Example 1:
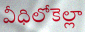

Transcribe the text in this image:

వీధిలోకెల్లా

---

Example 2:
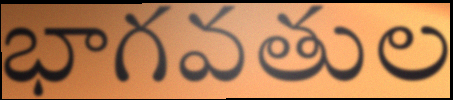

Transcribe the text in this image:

భాగవతుల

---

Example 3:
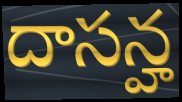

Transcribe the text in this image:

దాసన్హ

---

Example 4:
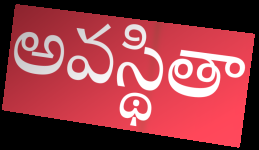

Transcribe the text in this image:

అవస్థితా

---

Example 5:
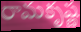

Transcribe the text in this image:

రామకృష్ణ